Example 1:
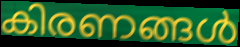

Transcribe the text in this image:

കിരണങ്ങൾ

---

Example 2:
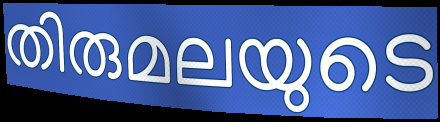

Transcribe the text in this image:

തിരുമലയുടെ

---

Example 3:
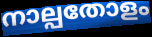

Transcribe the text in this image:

നാല്പതോളം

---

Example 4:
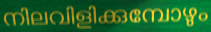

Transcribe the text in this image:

നിലവിളിക്കുമ്പോഴും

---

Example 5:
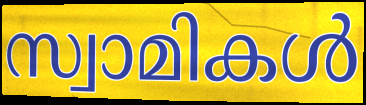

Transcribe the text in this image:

സ്വാമികൾ